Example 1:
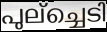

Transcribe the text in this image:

പുല്ച്ചെടി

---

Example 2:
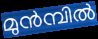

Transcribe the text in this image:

മുൻമ്പിൽ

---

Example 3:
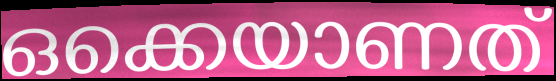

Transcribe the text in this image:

ഒക്കെയാണത്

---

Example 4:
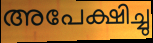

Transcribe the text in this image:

അപേക്ഷിച്ചു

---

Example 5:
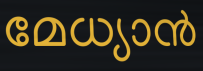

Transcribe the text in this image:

മേധ്യാൻ